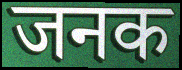
जनक